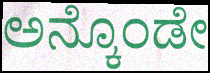
ಅನ್ಕೊಂಡೇ